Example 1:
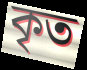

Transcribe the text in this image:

কৃত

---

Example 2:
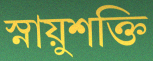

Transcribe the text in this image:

স্নায়ুশক্তি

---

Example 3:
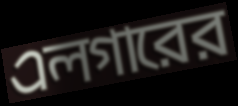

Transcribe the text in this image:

এলগারের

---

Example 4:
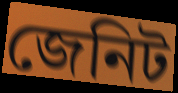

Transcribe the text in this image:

জেনিট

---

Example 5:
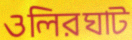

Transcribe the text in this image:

ওলিরঘাট